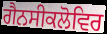
ਗੈਨਸੀਕਲੋਵਿਰ